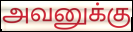
அவனுக்கு